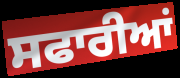
ਸਫਾਰੀਆਂ